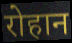
रोहान